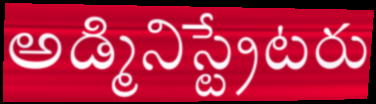
అడ్మినిస్ట్రేటరు